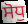
ਸੋਧੁ